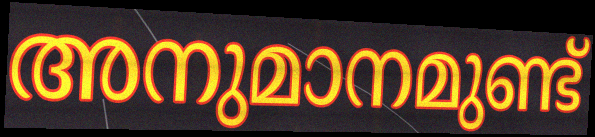
അനുമാനമുണ്ട്